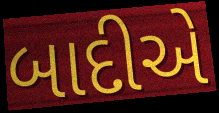
બાદીએ